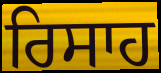
ਰਿਸਾਹ